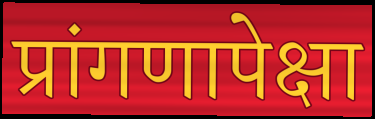
प्रांगणापेक्षा